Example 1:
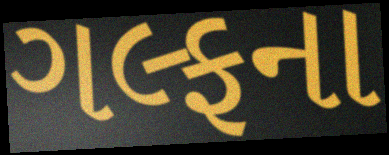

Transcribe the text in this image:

ગલ્ફના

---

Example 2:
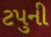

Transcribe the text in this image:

ટપુની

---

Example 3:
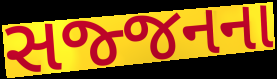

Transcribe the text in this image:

સજ્જનના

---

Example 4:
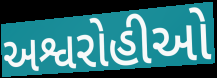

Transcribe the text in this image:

અશ્વરોહીઓ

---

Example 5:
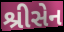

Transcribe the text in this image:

શ્રીસેન